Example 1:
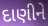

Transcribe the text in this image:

દાણીને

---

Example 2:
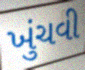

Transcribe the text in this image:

ખુંચવી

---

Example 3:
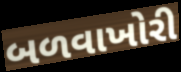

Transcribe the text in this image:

બળવાખોરી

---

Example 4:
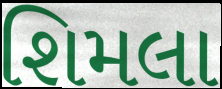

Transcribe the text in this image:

શિમલા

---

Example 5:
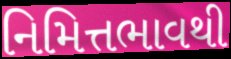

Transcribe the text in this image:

નિમિત્તભાવથી